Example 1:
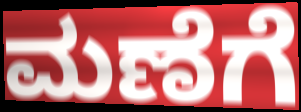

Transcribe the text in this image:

ಮಣೆಗೆ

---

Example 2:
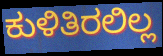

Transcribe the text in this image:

ಕುಳಿತಿರಲಿಲ್ಲ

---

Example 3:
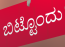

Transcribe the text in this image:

ಬಿಟ್ಟೊಂದು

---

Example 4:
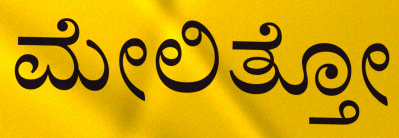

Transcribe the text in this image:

ಮೇಲಿತ್ತೋ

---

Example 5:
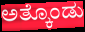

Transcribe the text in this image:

ಅತ್ಕೊಂಡು